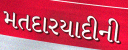
મતદારયાદીની